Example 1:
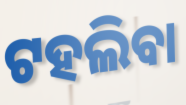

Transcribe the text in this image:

ଟହଲିବା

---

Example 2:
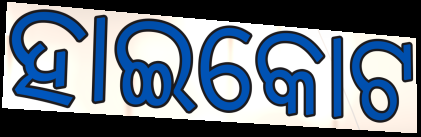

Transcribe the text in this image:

ହାଇକୋଟ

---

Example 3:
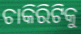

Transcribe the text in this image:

ଚାକିରିଟିକୁ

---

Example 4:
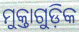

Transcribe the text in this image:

ମୁକ୍ତାଗୁଡ଼ିକ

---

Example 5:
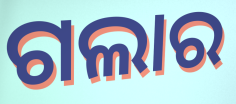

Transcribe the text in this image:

ଗଲାର